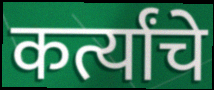
कर्त्यांचे